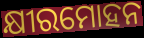
କ୍ଷୀରମୋହନ